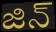
జిన్